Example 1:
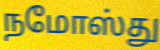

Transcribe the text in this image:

நமோஸ்து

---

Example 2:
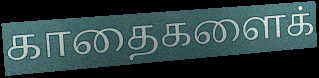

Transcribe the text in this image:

காதைகளைக்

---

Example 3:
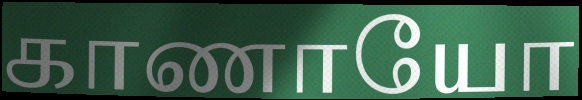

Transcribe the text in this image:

காணாயோ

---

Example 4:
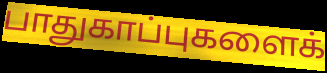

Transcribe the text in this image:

பாதுகாப்புகளைக்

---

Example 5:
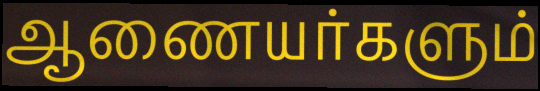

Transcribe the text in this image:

ஆணையர்களும்